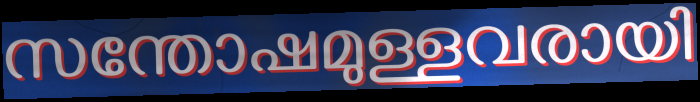
സന്തോഷമുള്ളവരായി